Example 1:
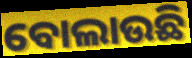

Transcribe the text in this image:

ବୋଲାଉଛି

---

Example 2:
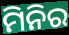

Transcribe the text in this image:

ମିନିର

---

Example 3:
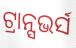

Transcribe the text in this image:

ଟ୍ରାନ୍ସଭର୍ସ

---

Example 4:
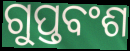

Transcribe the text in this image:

ଗୁପ୍ତବଂଶ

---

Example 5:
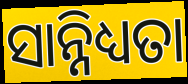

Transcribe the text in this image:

ସାନ୍ନିଧ୍ୟତା